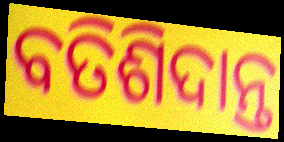
ବତିଶିଦାନ୍ତ